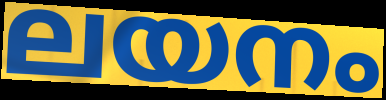
ലയനം